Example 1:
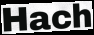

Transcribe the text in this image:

Hach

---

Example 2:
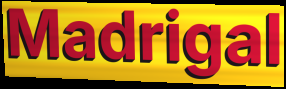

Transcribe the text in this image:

Madrigal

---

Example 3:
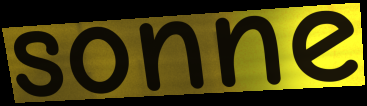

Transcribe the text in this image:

sonne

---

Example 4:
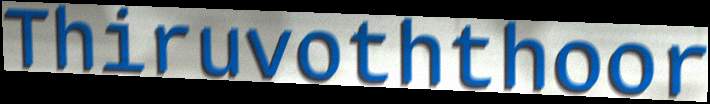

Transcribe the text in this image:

Thiruvoththoor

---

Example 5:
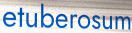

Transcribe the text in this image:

etuberosum